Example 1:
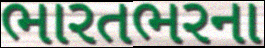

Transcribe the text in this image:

ભારતભરના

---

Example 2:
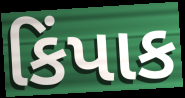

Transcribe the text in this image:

કિંપાક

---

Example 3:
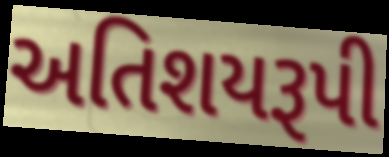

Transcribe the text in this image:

અતિશયરૂપી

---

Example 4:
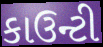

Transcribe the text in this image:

કાઉન્ટી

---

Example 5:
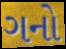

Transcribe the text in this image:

ગનો